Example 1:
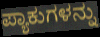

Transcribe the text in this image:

ಪ್ಯಾಕುಗಳನ್ನು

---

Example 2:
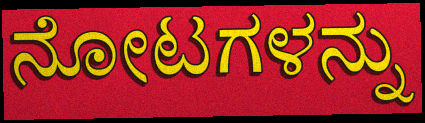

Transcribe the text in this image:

ನೋಟಗಳನ್ನು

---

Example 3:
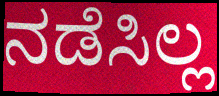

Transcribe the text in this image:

ನಡೆಸಿಲ್ಲ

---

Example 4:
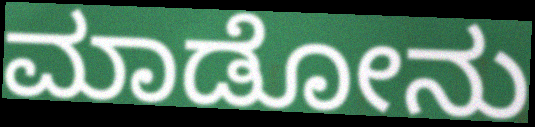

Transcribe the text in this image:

ಮಾಡೋನು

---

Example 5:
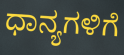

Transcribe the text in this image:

ಧಾನ್ಯಗಳಿಗೆ